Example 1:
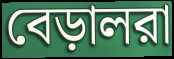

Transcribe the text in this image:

বেড়ালরা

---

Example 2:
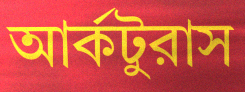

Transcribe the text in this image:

আর্কটুরাস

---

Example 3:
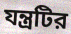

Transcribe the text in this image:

যন্ত্রটির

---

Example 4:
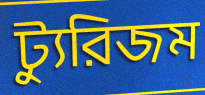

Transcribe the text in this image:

ট্যুরিজম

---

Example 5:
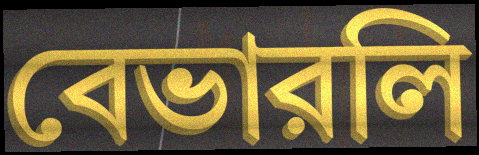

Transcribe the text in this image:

বেভারলি